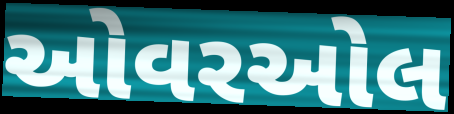
ઓવરઓલ